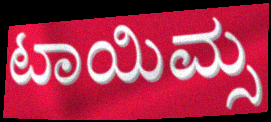
ಟಾಯಿಮ್ಸ